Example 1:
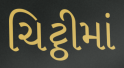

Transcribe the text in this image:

ચિટ્ઠીમાં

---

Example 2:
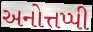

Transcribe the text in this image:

અનોત્તપ્પી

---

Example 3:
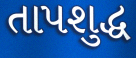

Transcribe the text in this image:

તાપશુદ્ધ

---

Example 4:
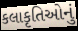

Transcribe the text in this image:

કલાકૃતિઓનું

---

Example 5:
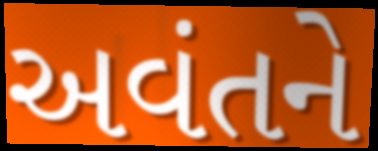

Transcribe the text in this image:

અવંતને